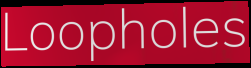
Loopholes